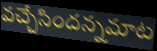
వచ్చేసిందన్నమాట